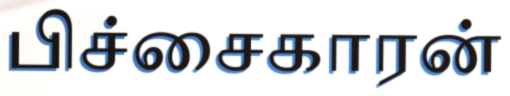
பிச்சைகாரன்